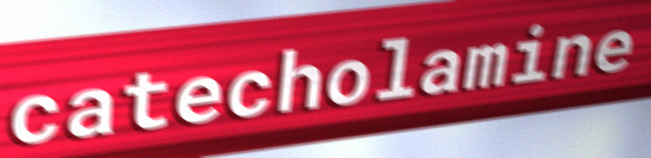
catecholamine